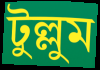
টুল্লুম